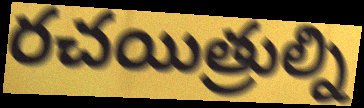
రచయిత్రుల్ని